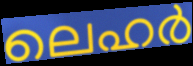
ലെഹർ